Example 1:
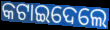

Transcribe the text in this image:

କଟାଇଦେଲେ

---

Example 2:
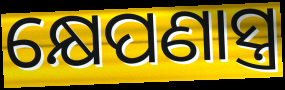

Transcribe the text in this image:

କ୍ଷେପଣାସ୍ତ୍ର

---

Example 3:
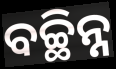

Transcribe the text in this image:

ବଚ୍ଛିନ୍ନ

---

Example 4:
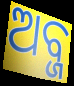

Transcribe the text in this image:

ଅବ୍ଜ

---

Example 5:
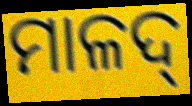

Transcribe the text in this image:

ମାଳଦ୍